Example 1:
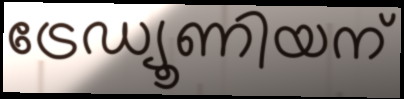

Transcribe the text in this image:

ട്രേഡ്യൂണിയന്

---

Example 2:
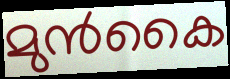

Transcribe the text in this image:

മുൻകൈ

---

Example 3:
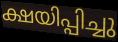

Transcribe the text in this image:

ക്ഷയിപ്പിച്ചു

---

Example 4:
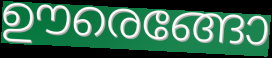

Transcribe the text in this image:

ഊരെങ്ങോ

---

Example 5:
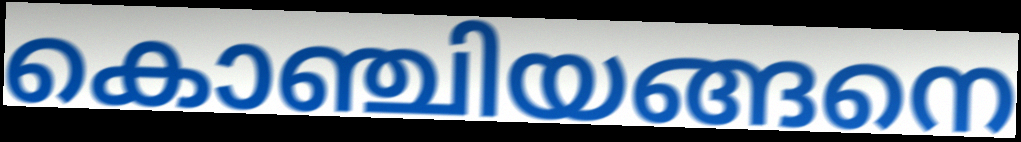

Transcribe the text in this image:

കൊഞ്ചിയങ്ങനെ